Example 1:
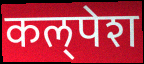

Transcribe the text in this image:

कल्पेश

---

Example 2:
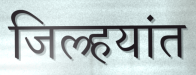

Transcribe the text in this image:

जिल्हयांत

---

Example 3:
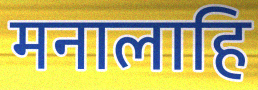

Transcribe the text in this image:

मनालाहि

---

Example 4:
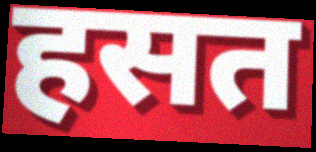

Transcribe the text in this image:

हसत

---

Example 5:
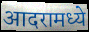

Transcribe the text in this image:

आदरामध्ये